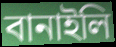
বানাইলি